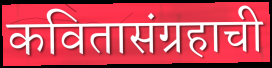
कवितासंग्रहाची